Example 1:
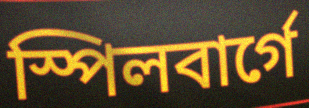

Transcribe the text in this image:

স্পিলবাৰ্গে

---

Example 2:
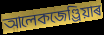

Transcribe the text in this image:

আলেকজেণ্ড্ৰিয়াৰ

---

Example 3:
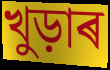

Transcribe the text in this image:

খুড়াৰ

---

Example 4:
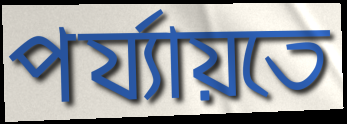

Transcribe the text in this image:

পৰ্য্যায়তে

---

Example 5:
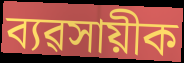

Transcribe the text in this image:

ব্যৱসায়ীক